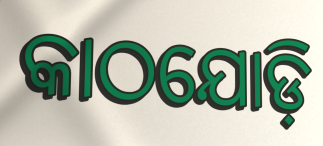
କାଠଯୋଡ଼ି